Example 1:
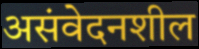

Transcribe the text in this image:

असंवेदनशील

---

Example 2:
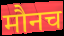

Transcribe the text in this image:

मौनच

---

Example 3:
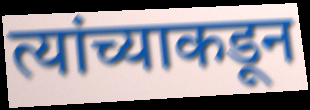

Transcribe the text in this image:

त्यांच्याकडून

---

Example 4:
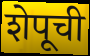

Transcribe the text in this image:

शेपूची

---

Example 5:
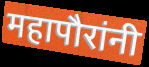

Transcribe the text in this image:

महापौरांनी